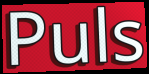
Puls